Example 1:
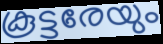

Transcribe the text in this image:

കൂട്ടരേയും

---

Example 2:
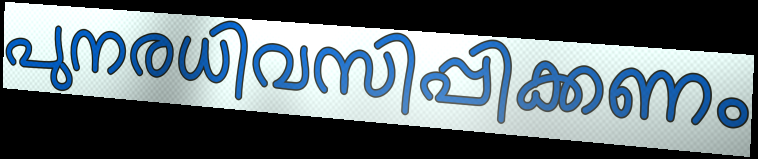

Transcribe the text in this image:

പുനരധിവസിപ്പിക്കണം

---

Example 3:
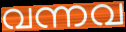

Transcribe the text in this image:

വന്നവ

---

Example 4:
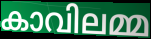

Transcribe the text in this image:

കാവിലമ്മ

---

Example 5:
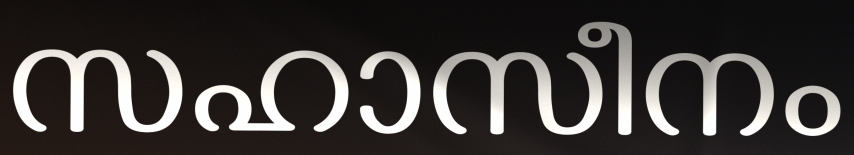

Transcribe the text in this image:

സഹാസീനം